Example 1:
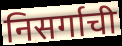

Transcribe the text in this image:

निसर्गाची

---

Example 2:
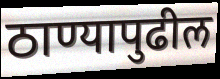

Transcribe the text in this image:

ठाण्यापुढील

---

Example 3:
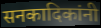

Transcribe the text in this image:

सनकादिकांनी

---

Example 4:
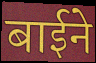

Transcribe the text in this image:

बाईने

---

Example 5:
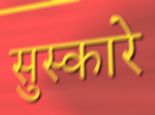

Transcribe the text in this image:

सुस्कारे